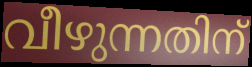
വീഴുന്നതിന്